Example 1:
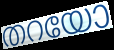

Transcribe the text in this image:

തറയോ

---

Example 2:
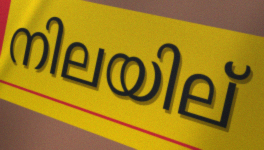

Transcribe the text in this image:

നിലയില്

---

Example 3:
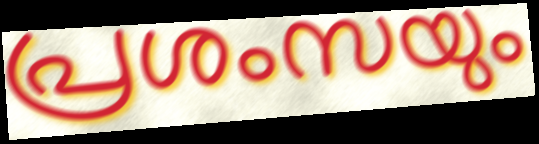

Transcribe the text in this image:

പ്രശംസയും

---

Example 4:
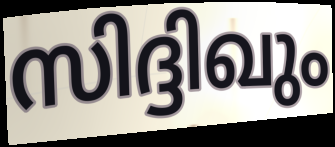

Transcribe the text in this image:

സിദ്ദിഖും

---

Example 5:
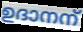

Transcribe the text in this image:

ഉദാനന്